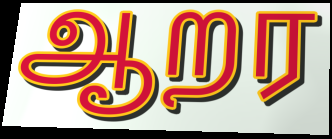
ஆறர